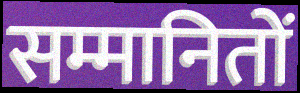
सम्मानितों